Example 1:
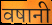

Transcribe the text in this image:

वषानी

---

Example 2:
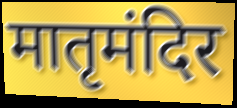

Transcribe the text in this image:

मातृमंदिर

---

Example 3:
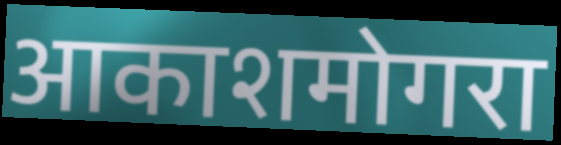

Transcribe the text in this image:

आकाशमोगरा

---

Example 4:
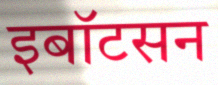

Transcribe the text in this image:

इबॉटसन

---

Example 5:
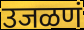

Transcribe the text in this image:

उजळणं